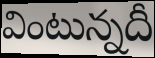
వింటున్నదీ